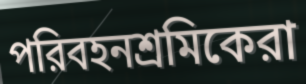
পরিবহনশ্রমিকেরা